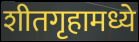
शीतगृहामध्ये